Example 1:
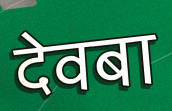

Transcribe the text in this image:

देवबा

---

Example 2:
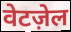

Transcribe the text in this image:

वेटज़ेल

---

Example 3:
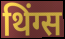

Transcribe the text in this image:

थिंग्स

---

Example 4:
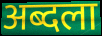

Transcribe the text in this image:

अब्दला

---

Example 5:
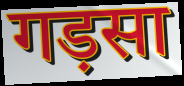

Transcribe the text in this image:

गड़सा